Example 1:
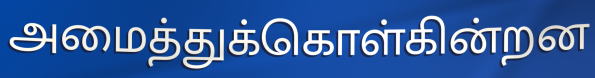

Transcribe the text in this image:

அமைத்துக்கொள்கின்றன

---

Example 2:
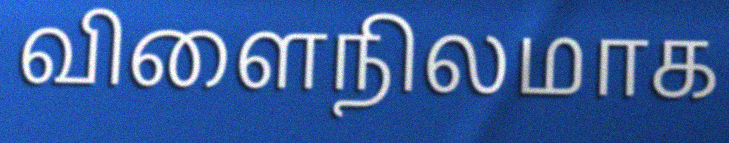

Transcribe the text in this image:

விளைநிலமாக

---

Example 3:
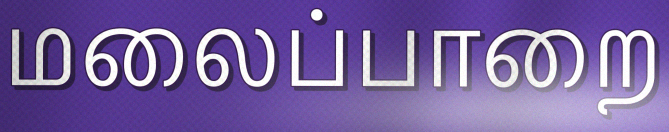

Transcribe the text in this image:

மலைப்பாறை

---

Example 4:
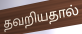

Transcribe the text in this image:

தவறியதால்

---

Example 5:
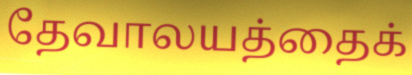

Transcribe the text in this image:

தேவாலயத்தைக்